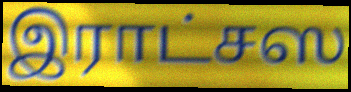
இராட்சஸ